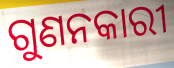
ଗୁଣନକାରୀ